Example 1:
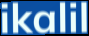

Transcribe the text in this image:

ikalil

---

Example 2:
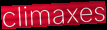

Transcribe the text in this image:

climaxes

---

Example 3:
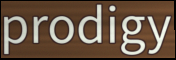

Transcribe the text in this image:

prodigy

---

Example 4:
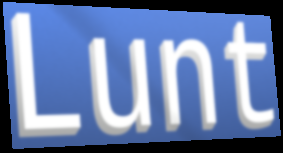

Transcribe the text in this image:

Lunt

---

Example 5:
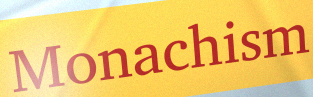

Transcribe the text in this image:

Monachism